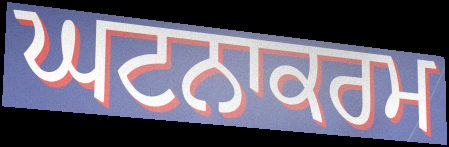
ਘਟਨਾਕਰਮ